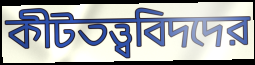
কীটতত্ত্ববিদদের